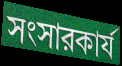
সংসারকার্য